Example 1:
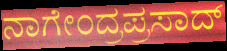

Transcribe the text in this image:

ನಾಗೇಂದ್ರಪ್ರಸಾದ್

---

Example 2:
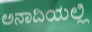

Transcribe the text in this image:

ಅನಾದಿಯಲ್ಲಿ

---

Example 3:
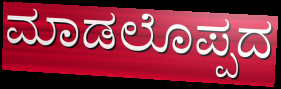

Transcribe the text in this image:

ಮಾಡಲೊಪ್ಪದ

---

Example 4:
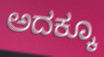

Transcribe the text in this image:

ಅದಕ್ಕೂ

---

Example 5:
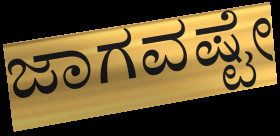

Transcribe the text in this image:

ಜಾಗವಷ್ಟೇ